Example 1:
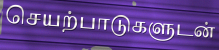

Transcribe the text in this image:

செயற்பாடுகளுடன்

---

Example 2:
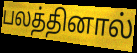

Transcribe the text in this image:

பலத்தினால்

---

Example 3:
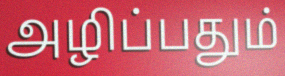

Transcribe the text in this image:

அழிப்பதும்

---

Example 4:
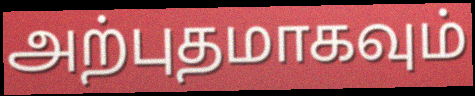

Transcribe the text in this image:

அற்புதமாகவும்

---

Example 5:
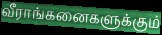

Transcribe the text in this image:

வீராங்கனைகளுக்கும்